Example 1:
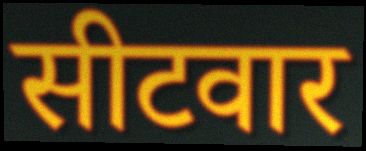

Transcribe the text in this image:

सीटवार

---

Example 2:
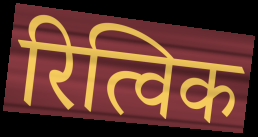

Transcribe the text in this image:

रित्विक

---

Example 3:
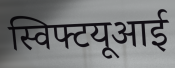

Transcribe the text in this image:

स्विफ्टयूआई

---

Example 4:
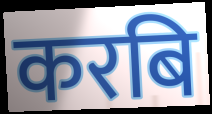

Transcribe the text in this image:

करबि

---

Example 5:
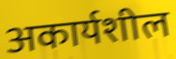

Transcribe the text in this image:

अकार्यशील